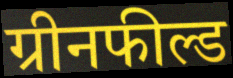
ग्रीनफील्‍ड